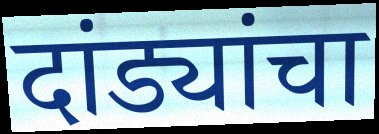
दांड्यांचा